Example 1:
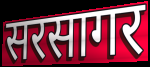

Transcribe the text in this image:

सरसागर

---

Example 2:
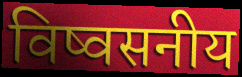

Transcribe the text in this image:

विष्वसनीय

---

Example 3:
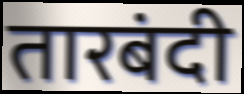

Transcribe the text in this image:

तारबंदी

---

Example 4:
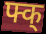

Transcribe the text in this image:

फ्क्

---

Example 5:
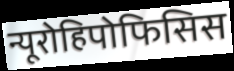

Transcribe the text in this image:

न्यूरोहिपोफिसिस